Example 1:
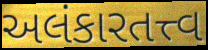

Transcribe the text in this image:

અલંકારતત્ત્વ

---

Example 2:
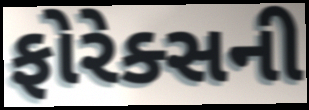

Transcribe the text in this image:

ફોરેક્સની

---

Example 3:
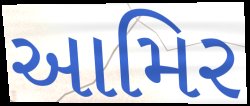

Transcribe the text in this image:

આમિર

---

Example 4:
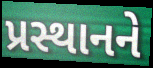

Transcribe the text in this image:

પ્રસ્થાનને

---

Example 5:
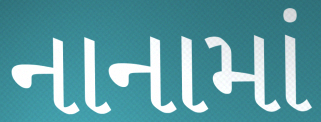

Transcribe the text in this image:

નાનામાં